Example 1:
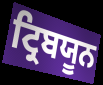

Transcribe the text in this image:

ਟ੍ਰਿਬਯੂਨ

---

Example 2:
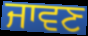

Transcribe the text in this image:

ਜਾਵਣ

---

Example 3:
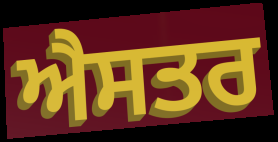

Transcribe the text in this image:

ਐਸਤਰ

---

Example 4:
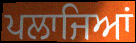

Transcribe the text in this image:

ਪਲਾਜਿਆਂ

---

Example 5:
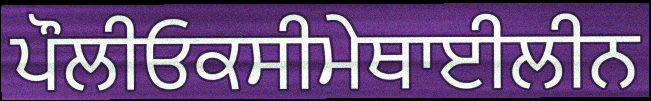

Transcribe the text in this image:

ਪੌਲੀਓਕਸੀਮੇਥਾਈਲੀਨ